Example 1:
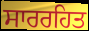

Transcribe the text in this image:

ਸਾਰਰਹਿਤ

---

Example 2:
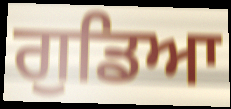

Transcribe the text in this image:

ਗੁਡਿਆ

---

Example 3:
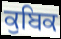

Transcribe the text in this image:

ਕੁਬਿਕ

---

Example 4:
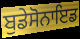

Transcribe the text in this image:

ਬੁਡੇਸੋਨਾਇਡ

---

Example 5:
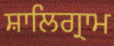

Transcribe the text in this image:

ਸ਼ਾਲਿਗ੍ਰਾਮ